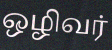
ஒழிவர்